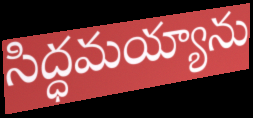
సిద్ధమయ్యాను